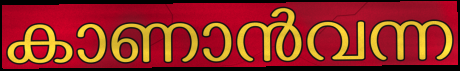
കാണാൻവന്ന